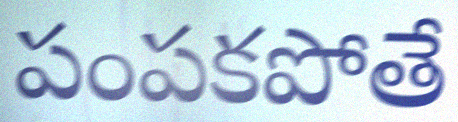
పంపకపోతే